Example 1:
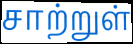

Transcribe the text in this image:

சாற்றுள்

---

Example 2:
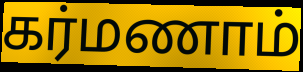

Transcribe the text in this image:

கர்மணாம்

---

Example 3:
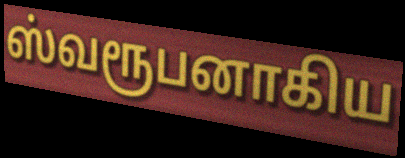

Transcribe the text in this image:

ஸ்வரூபனாகிய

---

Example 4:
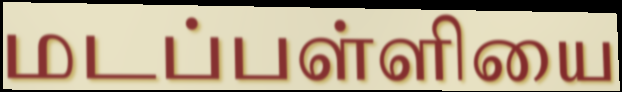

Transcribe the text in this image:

மடப்பள்ளியை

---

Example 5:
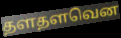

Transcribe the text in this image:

தளதளவென